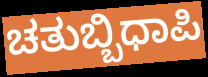
ಚತುಬ್ಬಿಧಾಪಿ